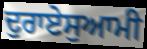
ਦੁਰਾਏਸੁਆਮੀ